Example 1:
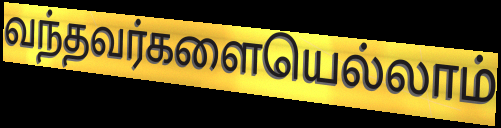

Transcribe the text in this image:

வந்தவர்களையெல்லாம்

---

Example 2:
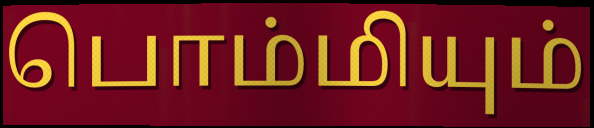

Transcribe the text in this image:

பொம்மியும்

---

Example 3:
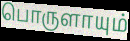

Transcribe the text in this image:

பொருளாயும்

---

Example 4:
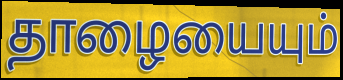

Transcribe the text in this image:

தாழையையும்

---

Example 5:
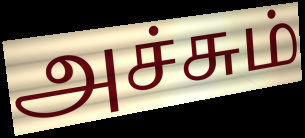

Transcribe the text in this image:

அச்சும்